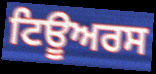
ਟਿਊਅਰਸ